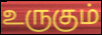
உருகும்